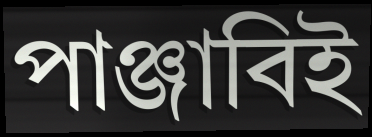
পাঞ্জাবিই